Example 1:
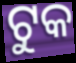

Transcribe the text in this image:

ଟୁକ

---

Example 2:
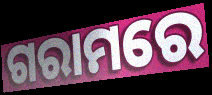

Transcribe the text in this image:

ଗରାମରେ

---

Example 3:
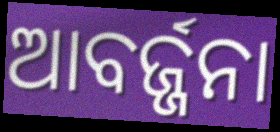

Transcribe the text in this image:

ଆବର୍ଜ୍ଜନା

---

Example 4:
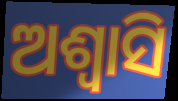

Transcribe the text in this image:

ଅଶ୍ୱାସି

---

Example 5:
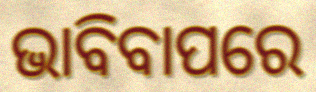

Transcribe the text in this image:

ଭାବିବାପରେ